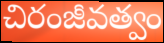
చిరంజీవత్వం